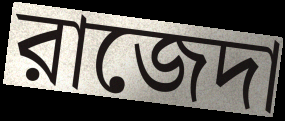
রাজেদা